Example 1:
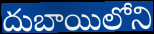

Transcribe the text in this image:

దుబాయిలోని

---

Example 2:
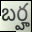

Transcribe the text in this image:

బర్హ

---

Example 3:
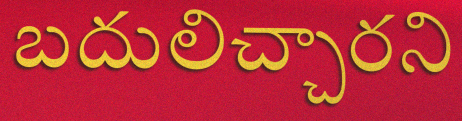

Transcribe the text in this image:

బదులిచ్చారని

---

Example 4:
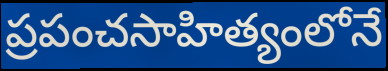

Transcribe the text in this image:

ప్రపంచసాహిత్యంలోనే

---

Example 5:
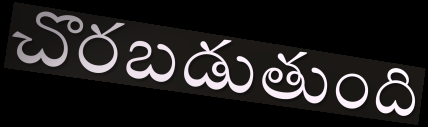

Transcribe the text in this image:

చొరబడుతుంది